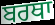
ਬਰਥਾ